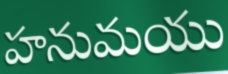
హనుమయు